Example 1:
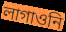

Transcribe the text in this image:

লাগাওনি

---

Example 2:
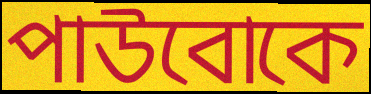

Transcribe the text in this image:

পাউবোকে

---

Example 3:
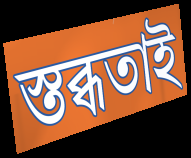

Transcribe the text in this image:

স্তব্ধতাই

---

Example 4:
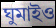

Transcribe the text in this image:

ঘুমাইও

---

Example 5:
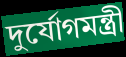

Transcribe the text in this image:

দুর্যোগমন্ত্রী